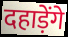
दहाड़ेंगे